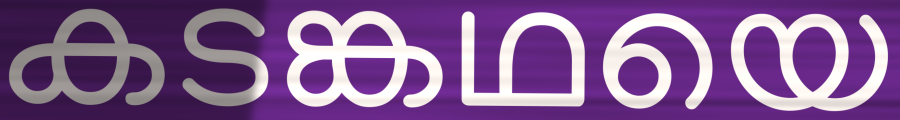
കടങ്കഥയെ